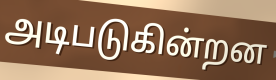
அடிபடுகின்றன